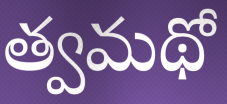
త్వమథో